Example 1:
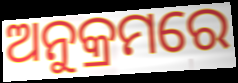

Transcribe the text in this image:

ଅନୁକ୍ରମରେ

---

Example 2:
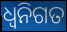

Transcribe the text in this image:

ଧ୍ୱନିଗତ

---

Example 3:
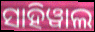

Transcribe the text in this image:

ସାହିୱାଲ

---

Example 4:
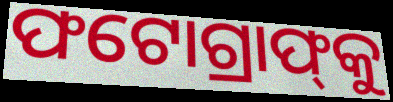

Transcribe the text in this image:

ଫଟୋଗ୍ରାଫ୍‌କୁ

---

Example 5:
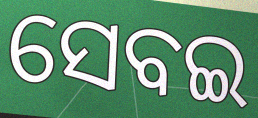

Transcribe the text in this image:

ସେବଇ